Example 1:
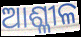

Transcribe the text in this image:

ଆଶ୍ଳୀଳ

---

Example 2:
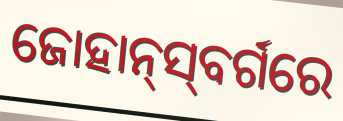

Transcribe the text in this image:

ଜୋହାନ୍‌ସ୍‌ବର୍ଗରେ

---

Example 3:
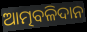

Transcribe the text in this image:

ଆତ୍ମବଳିଦାନ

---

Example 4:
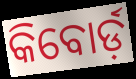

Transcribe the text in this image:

କିବୋର୍ଡ଼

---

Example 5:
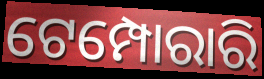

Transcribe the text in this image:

ଟେମ୍ପୋରାରି